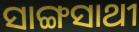
ସାଙ୍ଗସାଥୀ